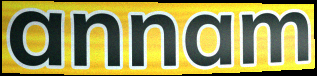
annam